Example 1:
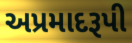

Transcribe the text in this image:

અપ્રમાદરૂપી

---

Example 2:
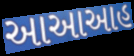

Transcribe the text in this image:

આઆઆહ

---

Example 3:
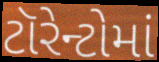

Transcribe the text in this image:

ટૉરેન્ટોમાં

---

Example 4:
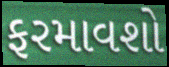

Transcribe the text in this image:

ફરમાવશો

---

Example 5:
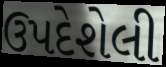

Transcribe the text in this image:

ઉપદેશેલી